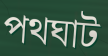
পথঘাট